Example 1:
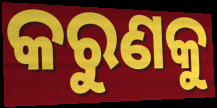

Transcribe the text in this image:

କରୁଣକୁ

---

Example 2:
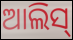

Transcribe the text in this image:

ଆଲିସ୍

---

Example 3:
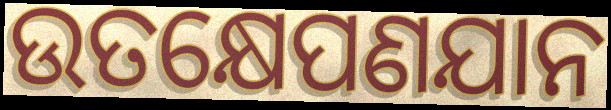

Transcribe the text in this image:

ଉତକ୍ଷେପଣଯାନ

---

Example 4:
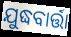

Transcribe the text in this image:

ଯୁଦ୍ଧବାର୍ତ୍ତା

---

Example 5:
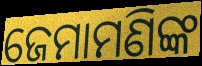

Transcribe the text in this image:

ଜେମାମଣିଙ୍କ